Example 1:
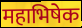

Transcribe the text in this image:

महाभिषेक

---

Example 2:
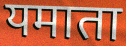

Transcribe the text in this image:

यमाता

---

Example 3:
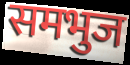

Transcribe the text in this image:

समभुज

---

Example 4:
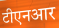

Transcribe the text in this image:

टीएनआर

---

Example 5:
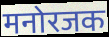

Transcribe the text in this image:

मनोरजक